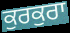
ਕੁਰਕੁਰਾ